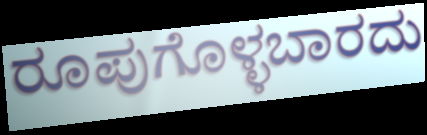
ರೂಪುಗೊಳ್ಳಬಾರದು